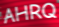
AHRQ